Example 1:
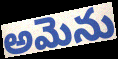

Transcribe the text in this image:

అమెను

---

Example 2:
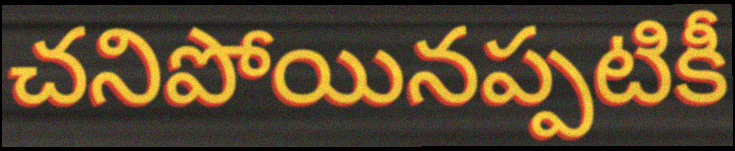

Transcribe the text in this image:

చనిపోయినప్పటికీ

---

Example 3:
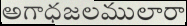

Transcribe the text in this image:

అగాధజలములారా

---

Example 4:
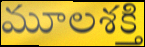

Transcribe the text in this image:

మూలశక్తి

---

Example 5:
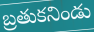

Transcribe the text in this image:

బ్రతుకనిండు